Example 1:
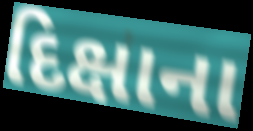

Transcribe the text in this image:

દિક્ષાના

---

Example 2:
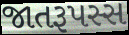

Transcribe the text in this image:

જાતરૂપસ્સ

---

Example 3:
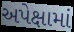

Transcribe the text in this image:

અપેક્ષામાં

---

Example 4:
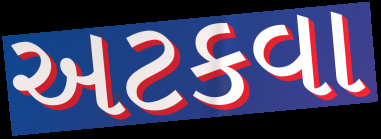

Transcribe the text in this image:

અટકવા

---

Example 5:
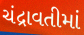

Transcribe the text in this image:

ચંદ્રાવતીમાં